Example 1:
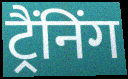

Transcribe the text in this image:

ट्रैंनिंग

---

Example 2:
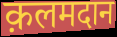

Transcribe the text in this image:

क़लमदान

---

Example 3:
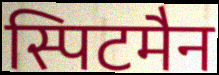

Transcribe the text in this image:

स्पिटमैन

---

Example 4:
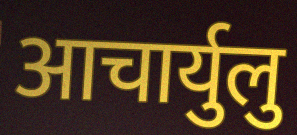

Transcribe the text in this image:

आचार्युलु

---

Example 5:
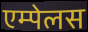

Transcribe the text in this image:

एम्पेलस